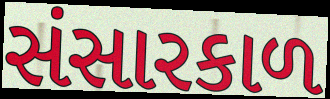
સંસારકાળ